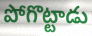
పోగొట్టాడు